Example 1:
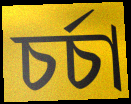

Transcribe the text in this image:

চৰ্চা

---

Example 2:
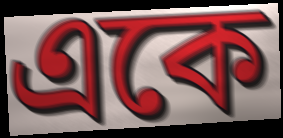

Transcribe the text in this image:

একে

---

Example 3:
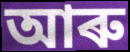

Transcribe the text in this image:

আৰু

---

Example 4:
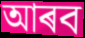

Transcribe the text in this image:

আৰব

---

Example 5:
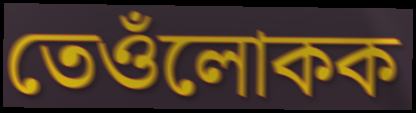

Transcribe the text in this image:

তেওঁলোকক